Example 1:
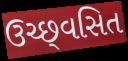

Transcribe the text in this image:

ઉચ્છ્‌વસિત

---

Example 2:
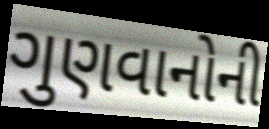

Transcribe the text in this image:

ગુણવાનોની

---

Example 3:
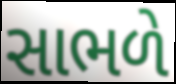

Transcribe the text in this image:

સાભળે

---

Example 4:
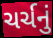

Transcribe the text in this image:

ચર્ચનું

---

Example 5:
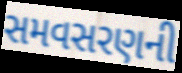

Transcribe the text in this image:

સમવસરણની